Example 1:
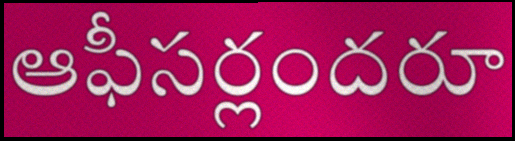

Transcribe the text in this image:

ఆఫీసర్లందరూ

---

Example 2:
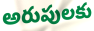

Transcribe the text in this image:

అరుపులకు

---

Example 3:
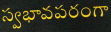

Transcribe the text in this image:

స్వభావపరంగా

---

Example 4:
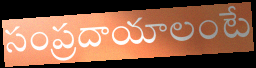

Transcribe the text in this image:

సంప్రదాయాలంటే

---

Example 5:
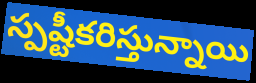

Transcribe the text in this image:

స్పష్టీకరిస్తున్నాయి